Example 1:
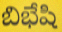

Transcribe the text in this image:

బిభేషి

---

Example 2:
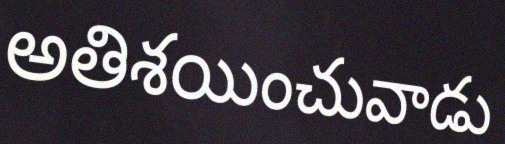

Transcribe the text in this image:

అతిశయించువాడు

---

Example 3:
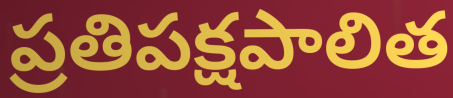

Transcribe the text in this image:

ప్రతిపక్షపాలిత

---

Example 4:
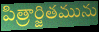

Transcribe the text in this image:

పిత్రార్జితమును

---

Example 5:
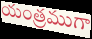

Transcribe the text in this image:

యంత్రముగా